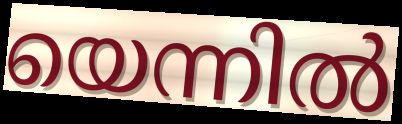
യെന്നിൽ